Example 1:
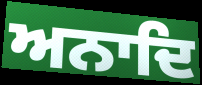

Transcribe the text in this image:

ਅਨਾਦਿ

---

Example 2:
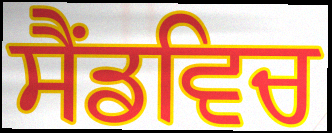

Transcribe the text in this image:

ਸੈਂਡਵਿਚ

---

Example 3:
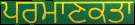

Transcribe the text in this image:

ਪਰਮਾਣਕਤਾ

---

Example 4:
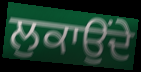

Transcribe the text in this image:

ਲੁਕਾਉਂਦੇ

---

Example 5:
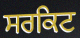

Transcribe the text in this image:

ਸਰਕਿਟ